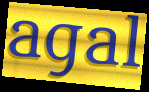
agal